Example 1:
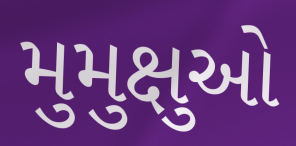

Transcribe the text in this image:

મુમુક્ષુઓ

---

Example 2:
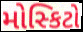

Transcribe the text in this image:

મોસ્કિટો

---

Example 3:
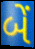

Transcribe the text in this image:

બેં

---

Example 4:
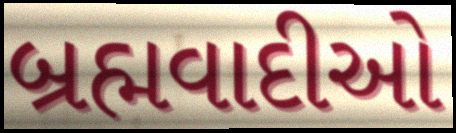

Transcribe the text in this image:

બ્રહ્મવાદીઓ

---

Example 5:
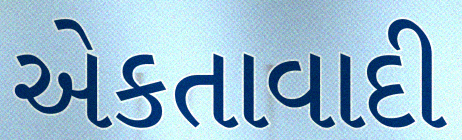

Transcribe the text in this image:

એકતાવાદી